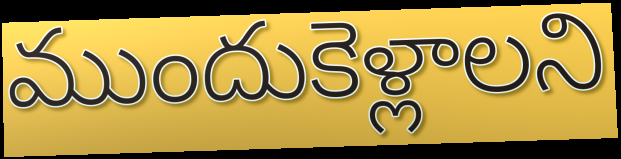
ముందుకెళ్లాలని